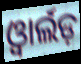
ଓ୍ୱାର୍ଲଡ଼